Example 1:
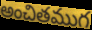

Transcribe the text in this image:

అంచితముగ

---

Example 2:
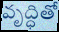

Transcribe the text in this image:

వృద్ధితో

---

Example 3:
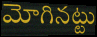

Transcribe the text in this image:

మోగినట్టు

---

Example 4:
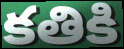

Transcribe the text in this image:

కతికి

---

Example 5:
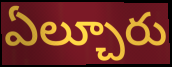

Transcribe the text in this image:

ఏల్చూరు